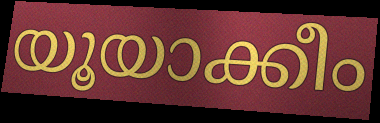
യൂയാക്കീം